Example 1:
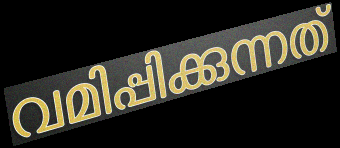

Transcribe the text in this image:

വമിപ്പിക്കുന്നത്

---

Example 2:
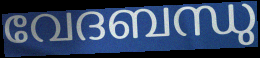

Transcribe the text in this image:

വേദബന്ധു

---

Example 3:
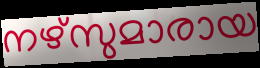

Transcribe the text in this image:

നഴ്സുമാരായ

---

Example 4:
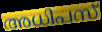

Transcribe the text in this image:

അധിപസ്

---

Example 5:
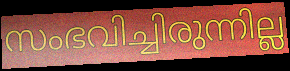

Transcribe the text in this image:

സംഭവിച്ചിരുന്നില്ല